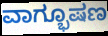
ವಾಗ್ಭೂಷಣ